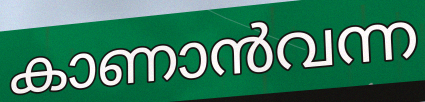
കാണാൻവന്ന